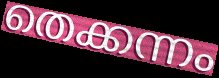
തെക്കന്നം